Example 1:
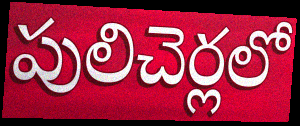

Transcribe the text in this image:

పులిచెర్లలో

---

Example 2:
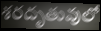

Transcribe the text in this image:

శరదృతువులో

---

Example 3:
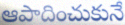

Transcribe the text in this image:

ఆపాదించుకునే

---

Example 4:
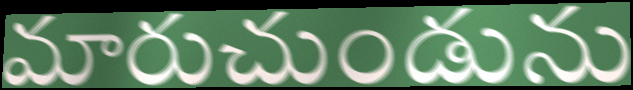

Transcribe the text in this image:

మారుచుండును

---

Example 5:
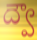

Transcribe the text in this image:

ద్వౌ